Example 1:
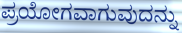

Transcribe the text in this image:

ಪ್ರಯೋಗವಾಗುವುದನ್ನು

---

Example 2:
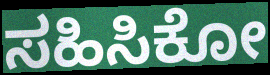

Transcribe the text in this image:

ಸಹಿಸಿಕೋ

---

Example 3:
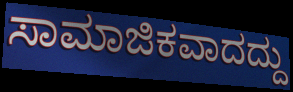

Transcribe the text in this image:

ಸಾಮಾಜಿಕವಾದದ್ದು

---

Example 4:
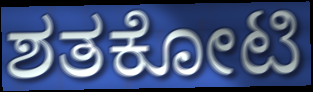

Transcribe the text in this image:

ಶತಕೋಟಿ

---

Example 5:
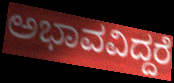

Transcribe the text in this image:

ಅಭಾವವಿದ್ದರೆ